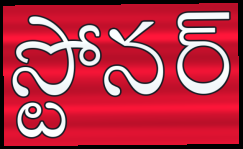
స్టోనర్